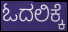
ಓದಲಿಕ್ಕೆ